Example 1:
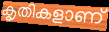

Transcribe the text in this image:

കൃതികളാണ്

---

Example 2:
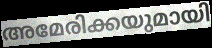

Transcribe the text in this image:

അമേരിക്കയുമായി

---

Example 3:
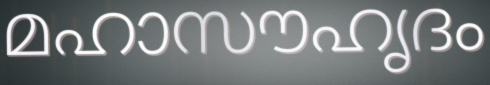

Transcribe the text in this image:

മഹാസൗഹൃദം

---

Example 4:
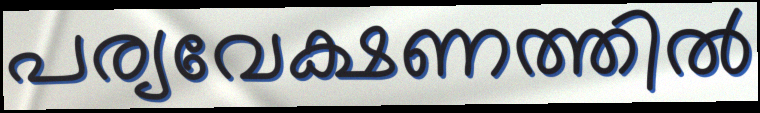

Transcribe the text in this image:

പര്യവേക്ഷണത്തിൽ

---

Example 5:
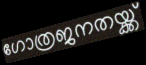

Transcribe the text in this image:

ഗോത്രജനതയ്ക്ക്